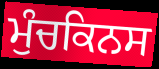
ਮੁੰਚਕਿਨਸ